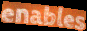
enables